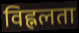
विह्नलता